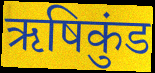
ऋषिकुंड